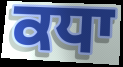
ਕਧਾ